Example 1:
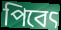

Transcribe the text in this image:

পিবেৎ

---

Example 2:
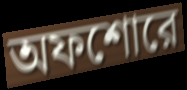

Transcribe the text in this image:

অফশোরে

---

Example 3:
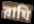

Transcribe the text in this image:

রাযি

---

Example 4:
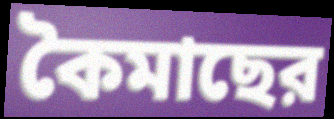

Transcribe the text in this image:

কৈমাছের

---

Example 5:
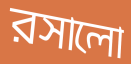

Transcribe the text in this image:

রসালো